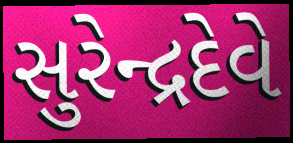
સુરેન્દ્રદેવે